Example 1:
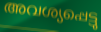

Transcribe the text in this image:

അവശ്യപ്പെട്ടു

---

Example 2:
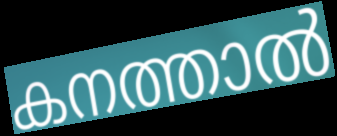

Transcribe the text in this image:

കനത്താൽ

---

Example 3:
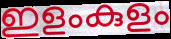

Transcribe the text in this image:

ഇളംകുളം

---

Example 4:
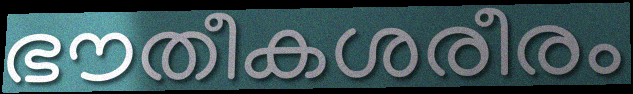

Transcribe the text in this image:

ഭൗതീകശരീരം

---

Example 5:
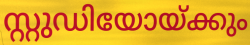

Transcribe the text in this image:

സ്റ്റുഡിയോയ്ക്കും